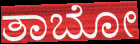
ತಾಬೋ